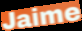
Jaime